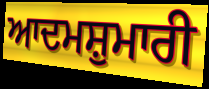
ਆਦਮਸ਼ੁਮਾਰੀ